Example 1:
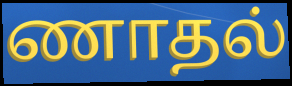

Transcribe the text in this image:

ணாதல்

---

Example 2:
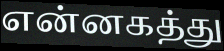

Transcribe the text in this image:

என்னகத்து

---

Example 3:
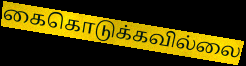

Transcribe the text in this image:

கைகொடுக்கவில்லை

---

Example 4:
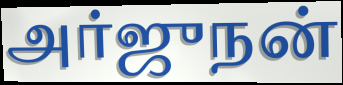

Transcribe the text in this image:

அர்ஜுநன்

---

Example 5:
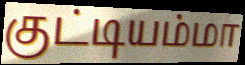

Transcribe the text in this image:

குட்டியம்மா